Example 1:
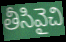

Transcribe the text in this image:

తీసివైచి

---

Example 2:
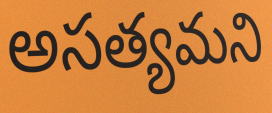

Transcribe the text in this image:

అసత్యమని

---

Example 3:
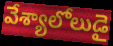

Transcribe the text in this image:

వేశ్యాలోలుడై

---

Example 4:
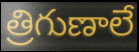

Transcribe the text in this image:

త్రిగుణాలే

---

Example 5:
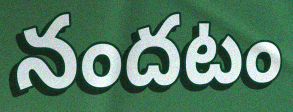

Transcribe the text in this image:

నందటం